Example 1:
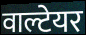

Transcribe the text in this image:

वाल्टेयर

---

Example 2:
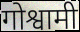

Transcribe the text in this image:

गोश्वामी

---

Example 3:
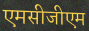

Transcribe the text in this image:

एमसीजीएम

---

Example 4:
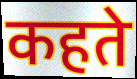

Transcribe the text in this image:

कहते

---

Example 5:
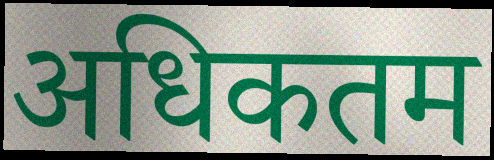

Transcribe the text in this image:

अधिकतम